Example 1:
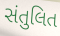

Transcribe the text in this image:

સંતુલિત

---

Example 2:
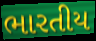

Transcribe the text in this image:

ભારતીય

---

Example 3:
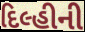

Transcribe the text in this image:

દિલ્હીની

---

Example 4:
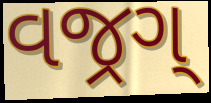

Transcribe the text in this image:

વજ્રગ્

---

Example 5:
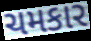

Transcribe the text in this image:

ચમકાર